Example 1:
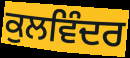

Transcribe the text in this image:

ਕੁਲਵਿੰਦਰ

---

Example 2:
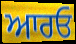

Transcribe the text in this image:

ਆਰਓ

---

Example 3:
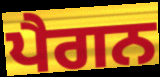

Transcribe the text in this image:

ਪੈਗਨ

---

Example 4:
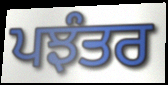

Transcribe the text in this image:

ਪਝੰਤਰ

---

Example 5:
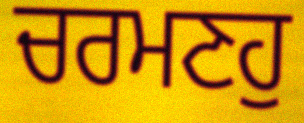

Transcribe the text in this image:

ਚਰਮਣਹੁ